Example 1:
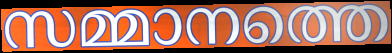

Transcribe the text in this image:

സമ്മാനത്തെ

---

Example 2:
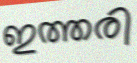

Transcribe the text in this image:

ഇത്തരി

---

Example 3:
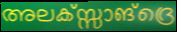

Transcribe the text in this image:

അലക്സ്സാങ്ദ്രെ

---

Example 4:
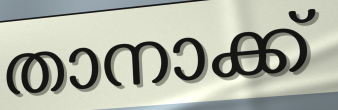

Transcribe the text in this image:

താനാക്ക്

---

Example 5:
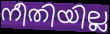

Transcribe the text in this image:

നീതിയില്ല